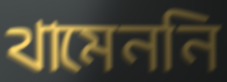
থামেননি